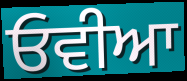
ਓਵੀਆ